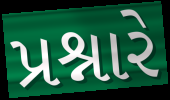
પ્રશ્નારે